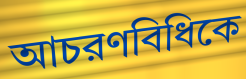
আচরণবিধিকে